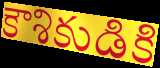
కౌశికుడికి